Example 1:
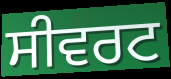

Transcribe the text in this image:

ਸੀਵਰਟ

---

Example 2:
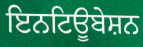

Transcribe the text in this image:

ਇਨਟਿਊਬੇਸ਼ਨ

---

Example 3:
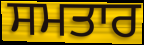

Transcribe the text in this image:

ਸਮਤਾਰ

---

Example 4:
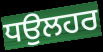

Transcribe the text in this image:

ਧਉਲਹਰ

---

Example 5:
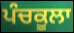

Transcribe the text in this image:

ਪੰਚਕੂਲਾ